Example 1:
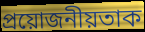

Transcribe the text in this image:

প্ৰয়োজনীয়তাক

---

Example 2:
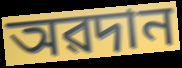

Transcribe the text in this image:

অৱদান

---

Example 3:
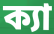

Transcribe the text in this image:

ক্যা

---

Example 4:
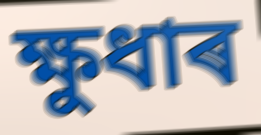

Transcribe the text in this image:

ক্ষুধাৰ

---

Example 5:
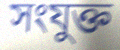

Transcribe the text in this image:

সংযুক্ত